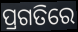
ପ୍ରଗତିରେ